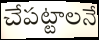
చేపట్టాలనే